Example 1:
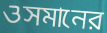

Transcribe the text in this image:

ওসমানের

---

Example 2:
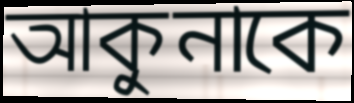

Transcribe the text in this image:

আকুনাকে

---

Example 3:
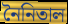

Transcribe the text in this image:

নৈনিতাল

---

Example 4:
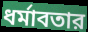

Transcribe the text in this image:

ধর্মাবতার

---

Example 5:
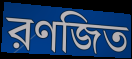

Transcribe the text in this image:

রণজিত